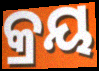
କ୍ରୟ